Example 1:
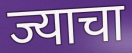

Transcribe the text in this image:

ज्याचा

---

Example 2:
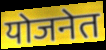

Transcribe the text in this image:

योजनेत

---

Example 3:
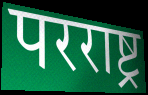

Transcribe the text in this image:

परराष्ट्र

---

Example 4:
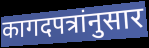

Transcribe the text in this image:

कागदपत्रांनुसार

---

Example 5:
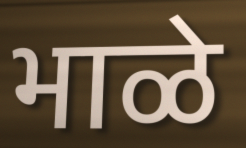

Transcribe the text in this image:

भाळे